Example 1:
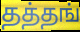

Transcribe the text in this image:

தத்தங்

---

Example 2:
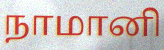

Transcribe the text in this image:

நாமானி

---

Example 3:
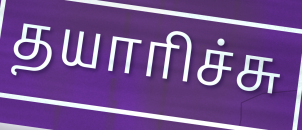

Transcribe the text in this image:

தயாரிச்சு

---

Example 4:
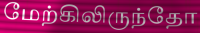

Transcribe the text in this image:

மேற்கிலிருந்தோ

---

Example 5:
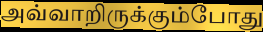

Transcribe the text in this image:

அவ்வாறிருக்கும்போது